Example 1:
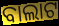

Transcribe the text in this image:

ବାଲାଟ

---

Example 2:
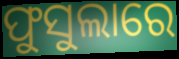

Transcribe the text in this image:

ଫୁସୁଲାରେ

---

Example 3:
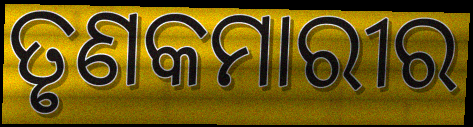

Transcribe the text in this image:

ତୃଣକମାରୀର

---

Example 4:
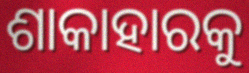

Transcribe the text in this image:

ଶାକାହାରକୁ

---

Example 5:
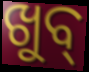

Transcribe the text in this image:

ଖୁବ୍